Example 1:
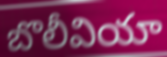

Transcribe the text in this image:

బొలీవియా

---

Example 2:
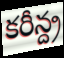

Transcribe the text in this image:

కరీన్ద్ర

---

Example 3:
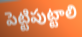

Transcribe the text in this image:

పెట్టిపుట్టాలి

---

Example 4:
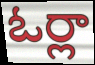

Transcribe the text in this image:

ఓర్లా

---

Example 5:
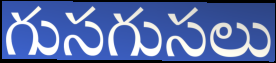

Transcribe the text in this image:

గుసగుసలు